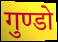
गुण्डो